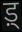
ड़्